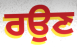
ਰਉਣ